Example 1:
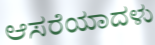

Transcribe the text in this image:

ಆಸರೆಯಾದಳು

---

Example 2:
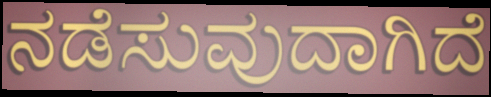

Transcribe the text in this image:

ನಡೆಸುವುದಾಗಿದೆ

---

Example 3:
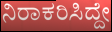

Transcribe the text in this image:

ನಿರಾಕರಿಸಿದ್ದೇ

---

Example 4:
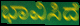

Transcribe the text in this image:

ಭಾವಿಸಿದೆ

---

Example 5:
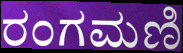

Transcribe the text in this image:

ರಂಗಮಣಿ